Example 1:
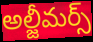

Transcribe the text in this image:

అల్జీమర్స్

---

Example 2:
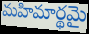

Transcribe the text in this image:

మహిమార్థమై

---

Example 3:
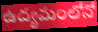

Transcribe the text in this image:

ఉద్యమంలోనో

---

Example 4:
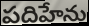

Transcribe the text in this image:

పదిహేను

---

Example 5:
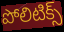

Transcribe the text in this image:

పోలిటిక్స్